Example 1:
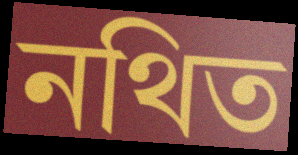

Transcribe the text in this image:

নথিত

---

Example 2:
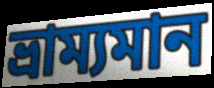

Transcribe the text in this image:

ভ্ৰাম্যমান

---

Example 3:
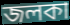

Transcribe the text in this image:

জলকা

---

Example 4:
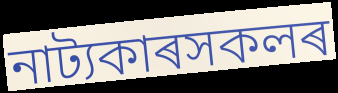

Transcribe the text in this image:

নাট্যকাৰসকলৰ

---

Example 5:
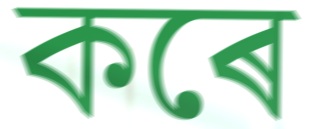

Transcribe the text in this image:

কৰে